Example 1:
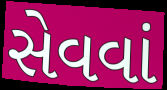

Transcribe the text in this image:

સેવવાં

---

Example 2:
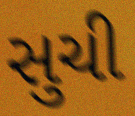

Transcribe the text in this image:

સુચી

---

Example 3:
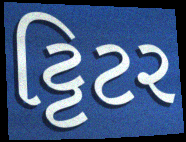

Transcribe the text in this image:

ટ્ટિટર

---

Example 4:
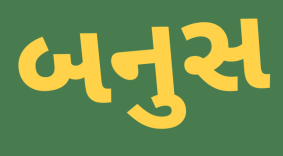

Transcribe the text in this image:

બનુસ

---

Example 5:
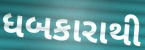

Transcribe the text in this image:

ધબકારાથી